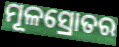
ମୂଳସ୍ରୋତର